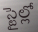
స్టైల్లో